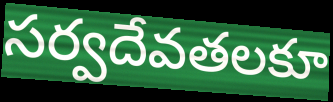
సర్వదేవతలకూ